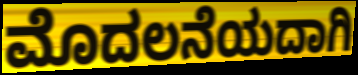
ಮೊದಲನೆಯದಾಗಿ